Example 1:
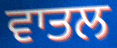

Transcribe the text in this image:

ਵਾਤਲ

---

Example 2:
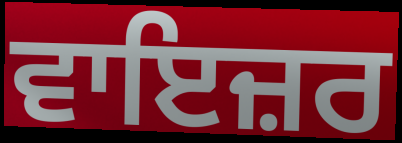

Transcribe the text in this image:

ਵਾਇਜ਼ਰ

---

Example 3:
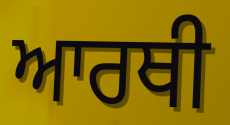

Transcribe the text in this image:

ਆਰਥੀ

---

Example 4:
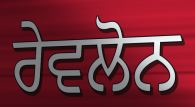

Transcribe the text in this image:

ਰੇਵਲੋਨ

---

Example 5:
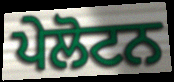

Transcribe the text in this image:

ਪੇਲੋਟਨ